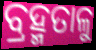
ବ୍ରହ୍ମତାଳୁ